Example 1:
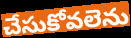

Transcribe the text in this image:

చేసుకోవలెను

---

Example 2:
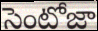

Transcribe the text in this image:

సెంటోజా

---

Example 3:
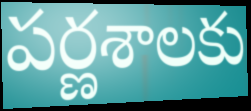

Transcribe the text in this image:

పర్ణశాలకు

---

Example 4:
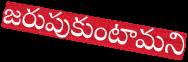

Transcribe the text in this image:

జరుపుకుంటామని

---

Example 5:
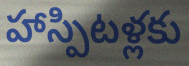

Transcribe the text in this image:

హాస్పిటళ్లకు